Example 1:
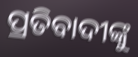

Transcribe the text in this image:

ପ୍ରତିବାଦୀଙ୍କୁ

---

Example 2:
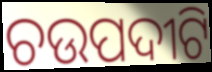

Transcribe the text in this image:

ଚଉପଦୀଟି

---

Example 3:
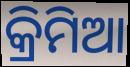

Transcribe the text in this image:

କ୍ରିମିଆ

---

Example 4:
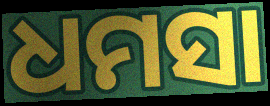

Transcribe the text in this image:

ଧମସା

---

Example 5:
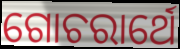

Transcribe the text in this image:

ଗୋଚରାର୍ଥେ